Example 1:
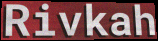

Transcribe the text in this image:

Rivkah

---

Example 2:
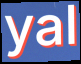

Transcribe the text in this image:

yal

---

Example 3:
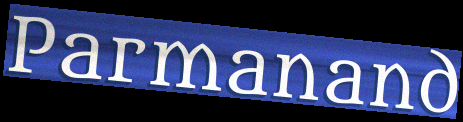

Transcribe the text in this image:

Parmanand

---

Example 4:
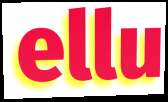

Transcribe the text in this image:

ellu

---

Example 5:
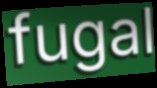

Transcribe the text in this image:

fugal